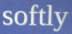
softly